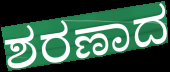
ಶರಣಾದ